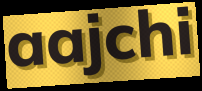
aajchi